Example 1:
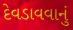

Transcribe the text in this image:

દેવડાવવાનું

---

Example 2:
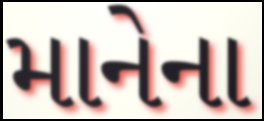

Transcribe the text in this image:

માનેના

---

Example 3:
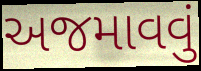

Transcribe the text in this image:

અજમાવવું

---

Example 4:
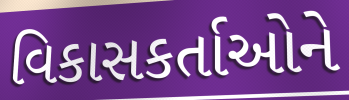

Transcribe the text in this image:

વિકાસકર્તાઓને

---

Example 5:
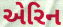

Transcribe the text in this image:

એરિન